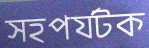
সহপর্যটক